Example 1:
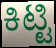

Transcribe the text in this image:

ಕಿಟ್ಟಿ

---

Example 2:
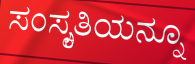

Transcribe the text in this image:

ಸಂಸ್ಕೃತಿಯನ್ನೂ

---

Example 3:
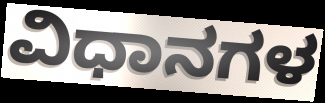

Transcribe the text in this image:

ವಿಧಾನಗಳ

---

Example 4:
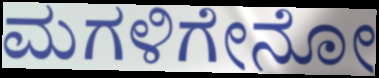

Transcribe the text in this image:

ಮಗಳಿಗೇನೋ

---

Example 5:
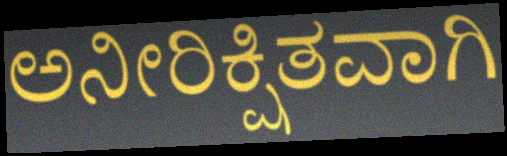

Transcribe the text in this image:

ಅನೀರಿಕ್ಷಿತವಾಗಿ